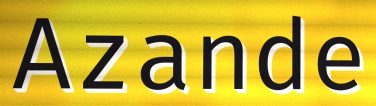
Azande